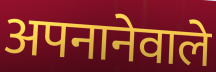
अपनानेवाले